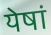
येषां